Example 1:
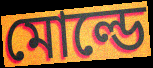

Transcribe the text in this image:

মোল্ডে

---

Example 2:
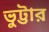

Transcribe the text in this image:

ভুট্টার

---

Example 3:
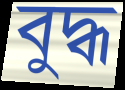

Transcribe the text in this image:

বুদ্ধ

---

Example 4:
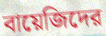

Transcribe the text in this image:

বায়েজিদের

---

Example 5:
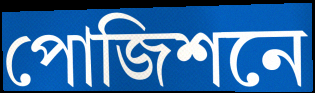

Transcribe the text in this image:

পোজিশনে